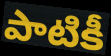
పాటికీ